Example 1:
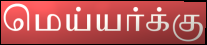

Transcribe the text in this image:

மெய்யர்க்கு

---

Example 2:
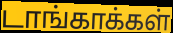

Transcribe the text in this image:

டாங்காக்கள்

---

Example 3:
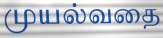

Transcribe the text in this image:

முயல்வதை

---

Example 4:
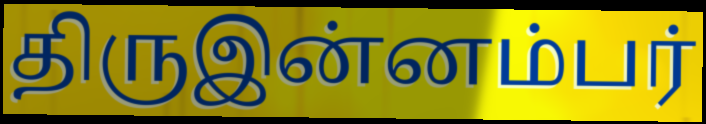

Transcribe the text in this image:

திருஇன்னம்பர்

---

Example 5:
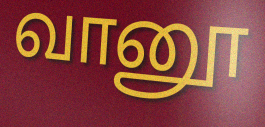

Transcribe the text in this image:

வானூ